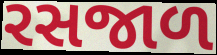
રસજાળ